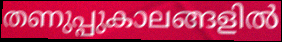
തണുപ്പുകാലങ്ങളിൽ